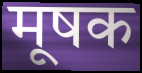
मूषक